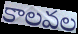
కాలవల